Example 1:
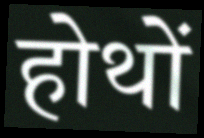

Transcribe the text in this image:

होथों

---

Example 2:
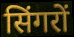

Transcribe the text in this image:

सिंगरों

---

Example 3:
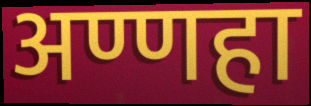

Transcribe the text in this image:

अण्णहा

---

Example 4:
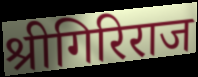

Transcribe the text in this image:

श्रीगिरिराज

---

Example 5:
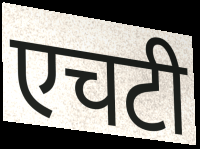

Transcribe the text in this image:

एचटी